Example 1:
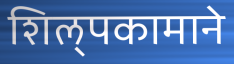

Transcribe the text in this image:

शिल्पकामाने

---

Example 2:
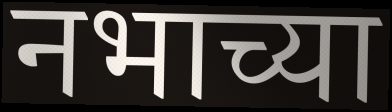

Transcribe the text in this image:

नभाच्या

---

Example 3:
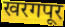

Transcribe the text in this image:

खरगपूर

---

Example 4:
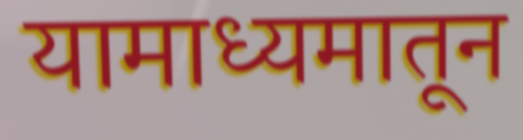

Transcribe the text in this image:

यामाध्यमातून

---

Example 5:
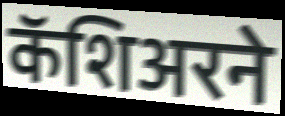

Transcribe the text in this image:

कॅशिअरने